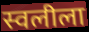
स्वलीला